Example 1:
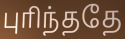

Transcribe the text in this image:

புரிந்ததே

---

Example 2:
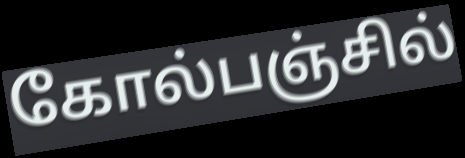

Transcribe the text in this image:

கோல்பஞ்சில்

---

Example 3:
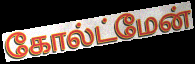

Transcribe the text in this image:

கோல்ட்மேன்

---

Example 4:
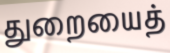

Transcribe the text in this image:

துறையைத்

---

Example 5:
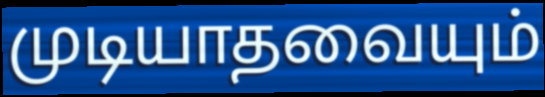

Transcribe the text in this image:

முடியாதவையும்